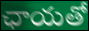
ఛాయతో